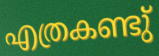
എത്രകണ്ടു്